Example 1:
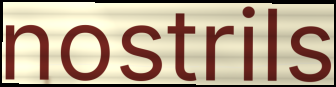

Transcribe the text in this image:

nostrils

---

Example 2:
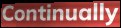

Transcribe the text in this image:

Continually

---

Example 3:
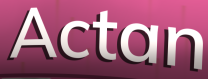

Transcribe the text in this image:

Actan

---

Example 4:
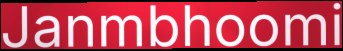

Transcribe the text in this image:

Janmbhoomi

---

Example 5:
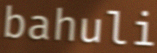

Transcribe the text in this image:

bahuli